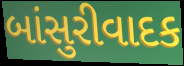
બાંસુરીવાદક